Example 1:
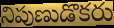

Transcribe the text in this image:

నిపుణుడొకరు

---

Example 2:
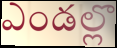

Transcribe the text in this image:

ఎండల్లొ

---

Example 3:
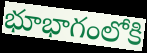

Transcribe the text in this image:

భూభాగంలోకి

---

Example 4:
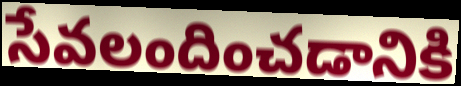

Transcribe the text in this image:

సేవలందించడానికి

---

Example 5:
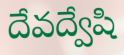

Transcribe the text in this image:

దేవద్వేషి